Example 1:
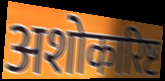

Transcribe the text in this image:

अशोकारिष्ट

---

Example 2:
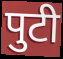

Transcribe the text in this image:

पुटी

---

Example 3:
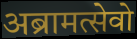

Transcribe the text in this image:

अब्रामत्सेवो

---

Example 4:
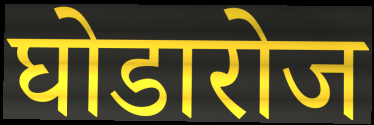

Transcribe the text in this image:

घोडारोज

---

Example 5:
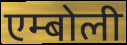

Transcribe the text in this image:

एम्बोली